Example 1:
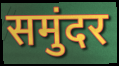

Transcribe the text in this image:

समुंदर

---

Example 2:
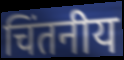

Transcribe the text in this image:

चिंतनीय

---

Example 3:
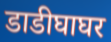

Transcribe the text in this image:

डाडीघाघर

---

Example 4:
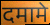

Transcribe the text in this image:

दमामे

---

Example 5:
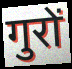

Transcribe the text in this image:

गुरों